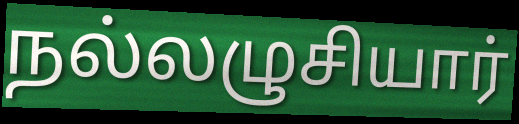
நல்லழுசியார்